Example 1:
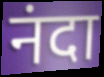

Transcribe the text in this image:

नंदा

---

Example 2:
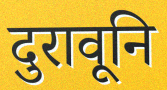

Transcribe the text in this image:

दुरावूनि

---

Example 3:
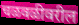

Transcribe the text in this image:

चळवळीवरील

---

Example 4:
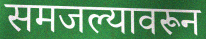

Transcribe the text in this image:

समजल्यावरून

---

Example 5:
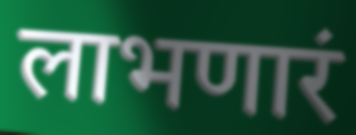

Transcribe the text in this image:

लाभणारं